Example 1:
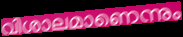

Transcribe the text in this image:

വിശാലമാണെന്നും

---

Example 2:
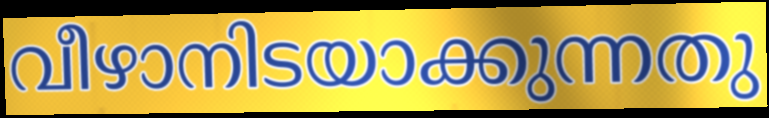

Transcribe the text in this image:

വീഴാനിടയാക്കുന്നതു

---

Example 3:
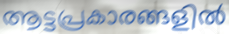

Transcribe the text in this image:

ആട്ടപ്രകാരങ്ങളിൽ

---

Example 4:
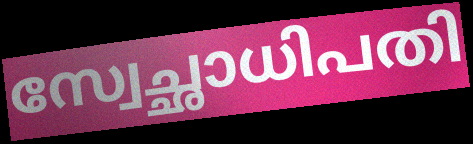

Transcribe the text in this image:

സ്വേച്ഛാധിപതി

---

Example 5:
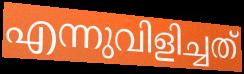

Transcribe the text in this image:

എന്നുവിളിച്ചത്